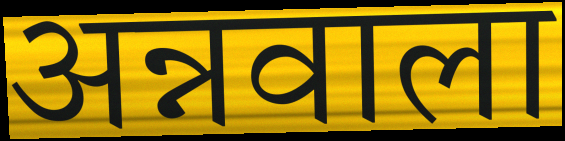
अन्नवाला